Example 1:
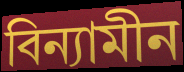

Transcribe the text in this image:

বিন্যামীন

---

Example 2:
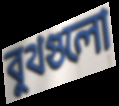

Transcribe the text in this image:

বুথগুলো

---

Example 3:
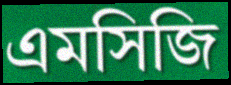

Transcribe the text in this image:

এমসিজি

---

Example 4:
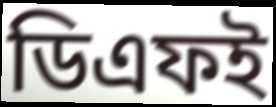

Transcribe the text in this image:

ডিএফই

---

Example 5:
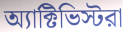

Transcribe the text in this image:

অ্যাক্টিভিস্টরা